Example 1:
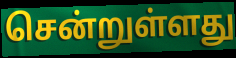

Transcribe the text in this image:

சென்றுள்ளது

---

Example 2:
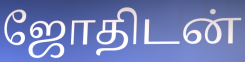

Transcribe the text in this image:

ஜோதிடன்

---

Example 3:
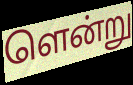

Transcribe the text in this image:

ளென்று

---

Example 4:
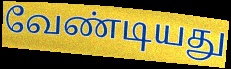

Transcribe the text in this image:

வேண்டியது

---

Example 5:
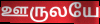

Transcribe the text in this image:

ஊருலயே